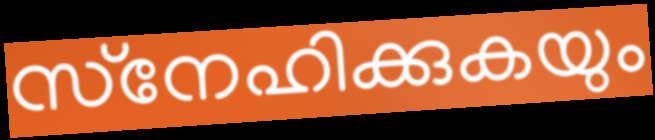
സ്‌നേഹിക്കുകയും